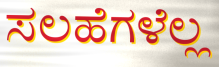
ಸಲಹೆಗಳೆಲ್ಲ